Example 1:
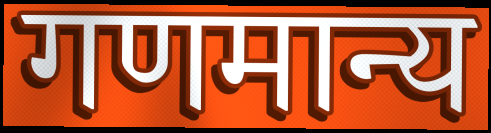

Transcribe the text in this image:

गणमान्य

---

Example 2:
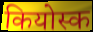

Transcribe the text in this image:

कियोस्क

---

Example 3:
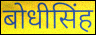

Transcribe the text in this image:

बोधीसिंह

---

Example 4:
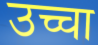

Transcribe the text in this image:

उच्चा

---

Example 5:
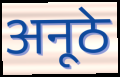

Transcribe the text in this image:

अनूठे